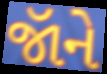
જૉને